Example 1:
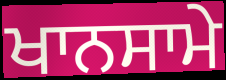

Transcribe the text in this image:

ਖਾਨਸਾਮੇ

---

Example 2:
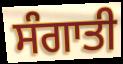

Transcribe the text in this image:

ਸੰਗਾਤੀ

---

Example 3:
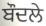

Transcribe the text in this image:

ਬੌਦਲੇ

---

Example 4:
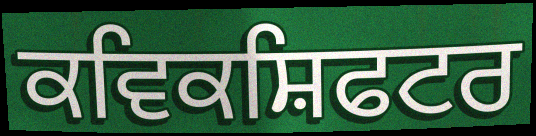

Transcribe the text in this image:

ਕਵਿਕਸ਼ਿਫਟਰ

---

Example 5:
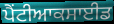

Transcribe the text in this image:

ਪੈਂਟੀਆਕਸਾਈਡ